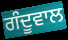
ਗੰਦੂਵਾਲ